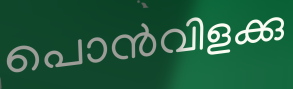
പൊൻവിളക്കു